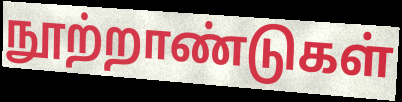
நூற்றாண்டுகள்